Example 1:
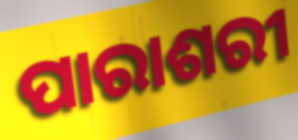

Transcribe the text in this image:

ପାରାଶରୀ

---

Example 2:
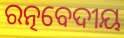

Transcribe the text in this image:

ରତ୍ନବେଦୀୟ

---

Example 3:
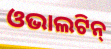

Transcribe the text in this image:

ଓଭାଲଟିନ୍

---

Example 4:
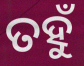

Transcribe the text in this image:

ତହୁଁ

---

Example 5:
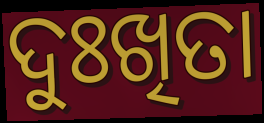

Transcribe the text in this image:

ଦୁଃଖିତା